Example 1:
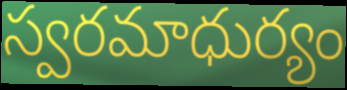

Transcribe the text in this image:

స్వరమాధుర్యం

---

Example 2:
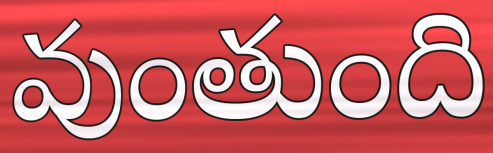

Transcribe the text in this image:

వుంతుంది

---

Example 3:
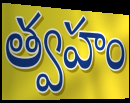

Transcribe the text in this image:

త్వహం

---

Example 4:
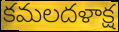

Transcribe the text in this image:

కమలదళాక్ష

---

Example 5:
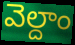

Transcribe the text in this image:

వెల్దాం